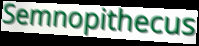
Semnopithecus